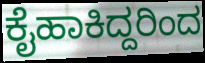
ಕೈಹಾಕಿದ್ದರಿಂದ